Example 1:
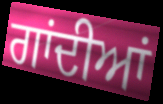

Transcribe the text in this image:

ਗਾਂਦੀਆਂ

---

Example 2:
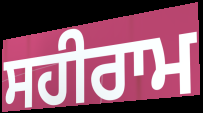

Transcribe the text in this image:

ਸਹੀਰਾਮ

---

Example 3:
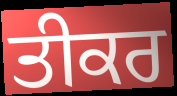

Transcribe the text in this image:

ਤੀਕਰ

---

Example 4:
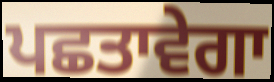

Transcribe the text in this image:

ਪਛਤਾਵੇਗਾ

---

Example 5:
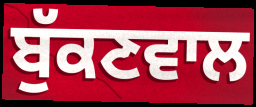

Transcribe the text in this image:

ਬੁੱਕਣਵਾਲ